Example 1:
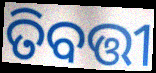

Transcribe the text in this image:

ତିବତ୍ତୀ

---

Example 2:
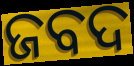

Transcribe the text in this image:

ଜବଦ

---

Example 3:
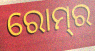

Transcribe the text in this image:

ରୋମ୍‍ର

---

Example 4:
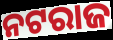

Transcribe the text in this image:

ନଟରାଜ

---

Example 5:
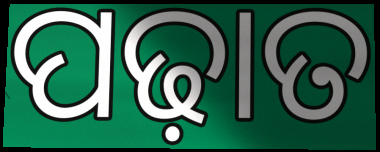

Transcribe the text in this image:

ପଢ଼ାତ